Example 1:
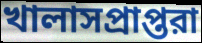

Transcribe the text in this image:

খালাসপ্রাপ্তরা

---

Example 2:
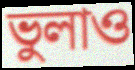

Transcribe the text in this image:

ভুলাও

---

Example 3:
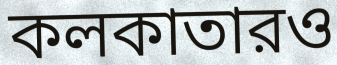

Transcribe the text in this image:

কলকাতারও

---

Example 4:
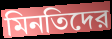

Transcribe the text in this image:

মিনতিদের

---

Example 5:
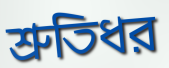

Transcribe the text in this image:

শ্রুতিধর